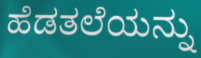
ಹೆಡತಲೆಯನ್ನು